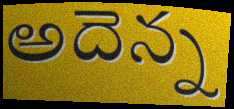
అదెన్న